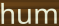
hum